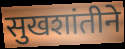
सुखशांतीने